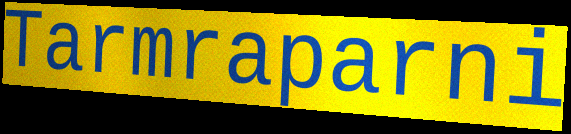
Tarmraparni